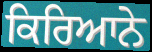
ਕਿਰਿਆਨੇ